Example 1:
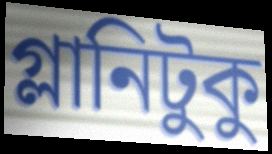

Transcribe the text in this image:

গ্লানিটুকু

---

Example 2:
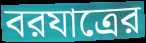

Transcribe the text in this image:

বরযাত্রের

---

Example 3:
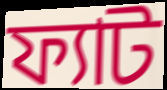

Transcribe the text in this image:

ফ্যাট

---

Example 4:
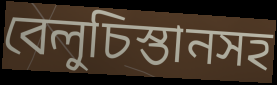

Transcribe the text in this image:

বেলুচিস্তানসহ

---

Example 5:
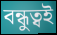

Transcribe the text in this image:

বন্ধুত্বই